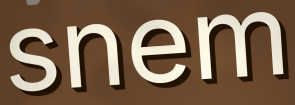
snem